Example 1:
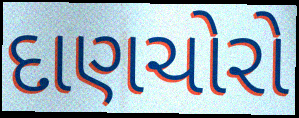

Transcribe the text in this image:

દાણચોરો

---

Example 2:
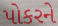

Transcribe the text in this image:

પોકરને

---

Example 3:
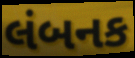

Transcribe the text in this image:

લંબનક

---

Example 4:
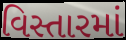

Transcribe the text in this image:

વિસ્તારમાં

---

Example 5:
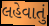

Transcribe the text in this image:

લહેવાતું